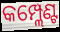
କମ୍ପ୍ଲେଣ୍ଟ